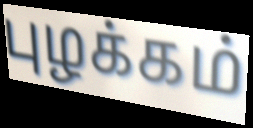
புழக்கம்